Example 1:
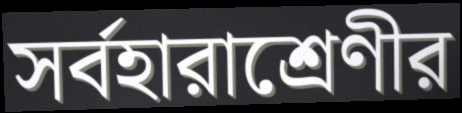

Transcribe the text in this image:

সর্বহারাশ্রেণীর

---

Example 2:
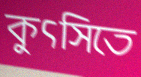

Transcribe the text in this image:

কুৎসিতে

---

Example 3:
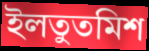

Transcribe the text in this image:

ইলতুতমিশ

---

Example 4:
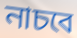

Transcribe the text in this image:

নাচবে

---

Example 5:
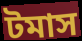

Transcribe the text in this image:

টমাস